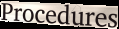
Procedures